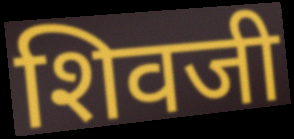
शिवजी